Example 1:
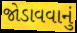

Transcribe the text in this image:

જોડાવવાનું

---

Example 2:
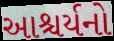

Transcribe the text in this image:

આશ્ચર્યનો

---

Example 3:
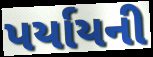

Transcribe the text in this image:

પર્યાયની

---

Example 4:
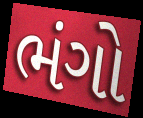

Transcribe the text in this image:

ભંગો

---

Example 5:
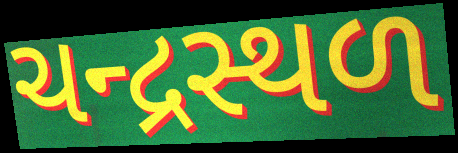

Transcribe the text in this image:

ચન્દ્રસ્થળ